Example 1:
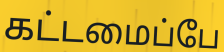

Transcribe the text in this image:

கட்டமைப்பே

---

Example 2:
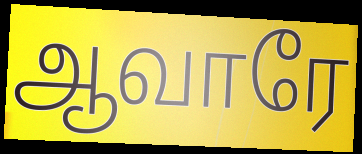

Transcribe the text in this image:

ஆவாரே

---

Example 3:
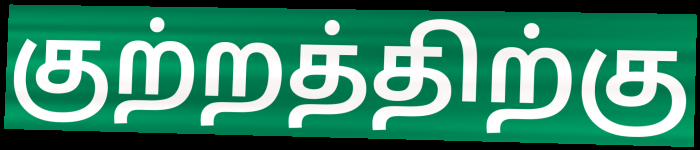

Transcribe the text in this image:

குற்றத்திற்கு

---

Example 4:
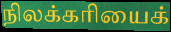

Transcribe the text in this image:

நிலக்கரியைக்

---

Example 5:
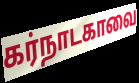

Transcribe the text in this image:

கர்நாடகாவை